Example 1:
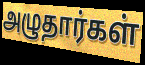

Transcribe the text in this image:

அழுதார்கள்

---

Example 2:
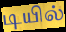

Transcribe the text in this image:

டியில்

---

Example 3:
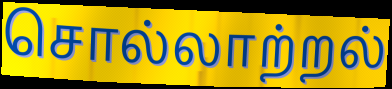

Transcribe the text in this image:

சொல்லாற்றல்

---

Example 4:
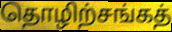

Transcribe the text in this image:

தொழிற்சங்கத்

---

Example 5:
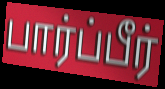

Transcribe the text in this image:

பார்ப்பீர்